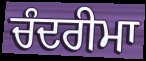
ਚੰਦਰੀਮਾ